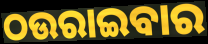
ଠଉରାଇବାର